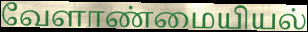
வேளாண்மையியல்